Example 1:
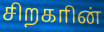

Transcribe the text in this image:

சிறகரின்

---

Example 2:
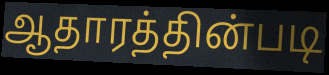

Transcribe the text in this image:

ஆதாரத்தின்படி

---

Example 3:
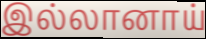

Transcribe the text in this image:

இல்லானாய்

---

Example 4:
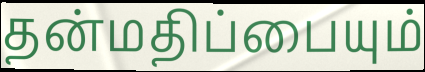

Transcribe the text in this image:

தன்மதிப்பையும்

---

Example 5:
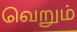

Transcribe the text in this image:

வெறும்